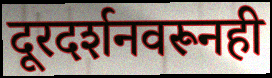
दूरदर्शनवरूनही